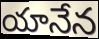
యానేన